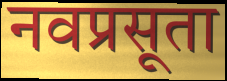
नवप्रसूता